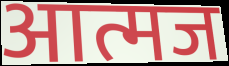
आत्मज